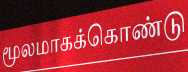
மூலமாகக்கொண்டு